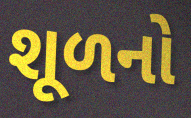
શૂળનો